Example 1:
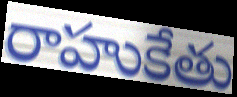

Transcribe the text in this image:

రాహుకేతు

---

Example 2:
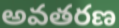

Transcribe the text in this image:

అవతరణ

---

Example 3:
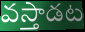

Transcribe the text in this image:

వస్తాడట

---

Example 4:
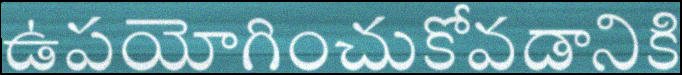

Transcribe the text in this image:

ఉపయోగించుకోవడానికి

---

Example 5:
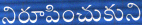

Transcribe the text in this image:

నిరూపించుకుని